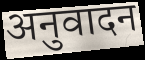
अनुवादन